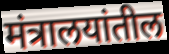
मंत्रालयांतील